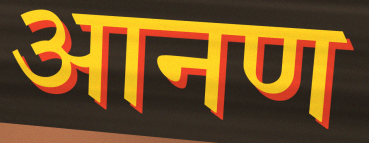
आनण